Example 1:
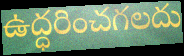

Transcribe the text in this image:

ఉద్ధరించగలదు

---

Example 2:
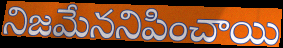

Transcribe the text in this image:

నిజమేననిపించాయి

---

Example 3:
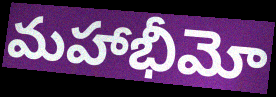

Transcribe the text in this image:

మహాభీమో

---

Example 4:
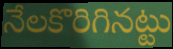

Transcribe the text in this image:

నేలకొరిగినట్టు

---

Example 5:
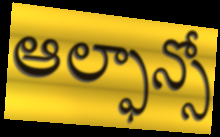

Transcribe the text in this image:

ఆల్ఫాన్సో